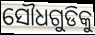
ସୌଧଗୁଡିକୁ